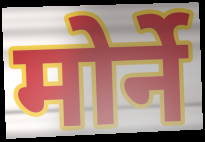
मोर्ने